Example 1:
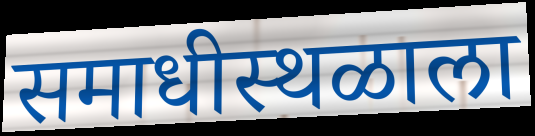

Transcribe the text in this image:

समाधीस्थळाला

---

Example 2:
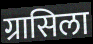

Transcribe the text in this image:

ग्रासिला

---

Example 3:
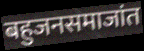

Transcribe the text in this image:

बहुजनसमाजांत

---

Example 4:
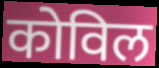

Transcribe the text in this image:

कोविल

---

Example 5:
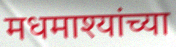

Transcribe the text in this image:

मधमाश्‍यांच्या